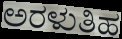
ಅರಳುತಿಹ